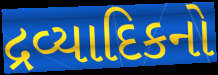
દ્રવ્યાદિકનો